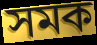
সমক